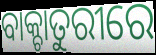
ବାକ୍ଚାତୁରୀରେ